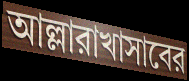
আল্লারাখাসাবের